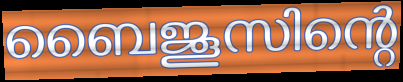
ബൈജൂസിന്റെ